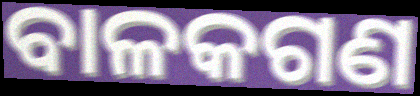
ବାଳକଗଣ